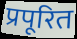
प्रपूरित